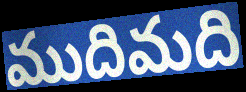
ముదిమది